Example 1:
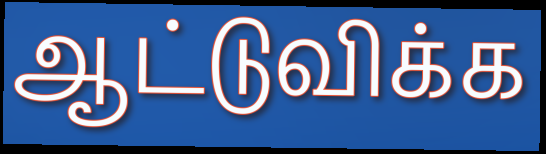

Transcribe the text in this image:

ஆட்டுவிக்க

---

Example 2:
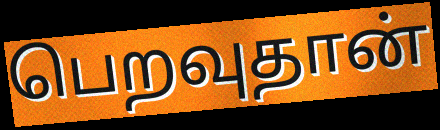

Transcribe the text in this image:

பெறவுதான்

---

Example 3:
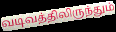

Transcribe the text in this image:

வடிவத்திலிருந்தும்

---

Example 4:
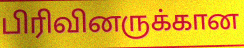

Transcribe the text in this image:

பிரிவினருக்கான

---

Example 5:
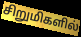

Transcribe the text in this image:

சிறுமிகளில்